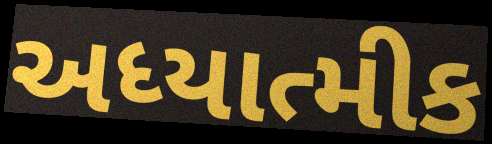
અધ્યાત્મીક